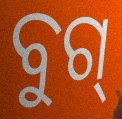
ବୁଗ୍